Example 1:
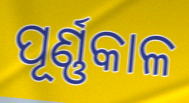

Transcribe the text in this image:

ପୂର୍ଣ୍ଣକାଳ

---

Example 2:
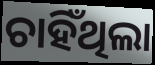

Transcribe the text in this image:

ଚାହିଁଥିଲା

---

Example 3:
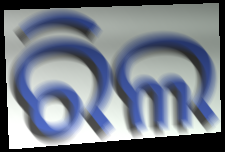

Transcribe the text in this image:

ରିଲ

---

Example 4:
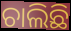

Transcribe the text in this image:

ଚାଲିଛି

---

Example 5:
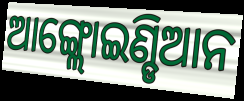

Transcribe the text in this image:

ଆଙ୍ଗ୍ଲୋଇଣ୍ଡିଆନ